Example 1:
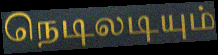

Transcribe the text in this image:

நெடிலடியும்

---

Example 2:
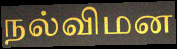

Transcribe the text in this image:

நல்விமன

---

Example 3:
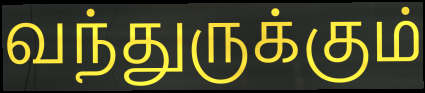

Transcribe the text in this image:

வந்துருக்கும்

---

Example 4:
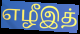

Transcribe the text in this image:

எழீஇத்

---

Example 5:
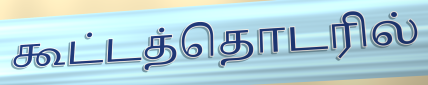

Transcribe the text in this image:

கூட்டத்தொடரில்